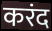
करंद